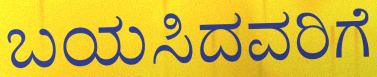
ಬಯಸಿದವರಿಗೆ